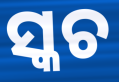
ସ୍କଚ